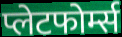
प्लेटफोर्म्स